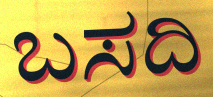
ಬಸದಿ